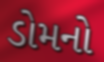
ડોમનો